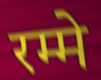
रम्मे